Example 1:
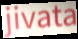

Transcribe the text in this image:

jivata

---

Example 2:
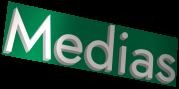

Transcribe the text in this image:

Medias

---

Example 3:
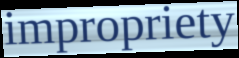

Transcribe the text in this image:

impropriety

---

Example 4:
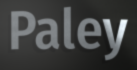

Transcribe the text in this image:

Paley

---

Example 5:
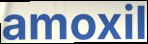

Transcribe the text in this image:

amoxil